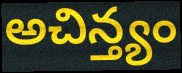
అచిన్త్యం